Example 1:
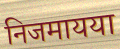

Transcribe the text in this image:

निजमायया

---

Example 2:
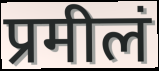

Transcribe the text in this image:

प्रमीलं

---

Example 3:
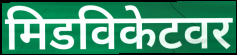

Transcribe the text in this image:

मिडविकेटवर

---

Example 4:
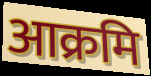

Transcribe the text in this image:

आक्रमि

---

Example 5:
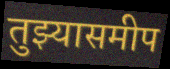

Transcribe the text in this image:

तुझ्यासमीप